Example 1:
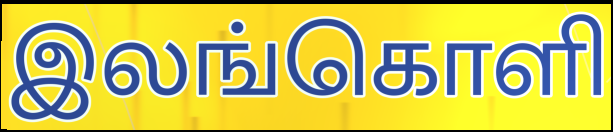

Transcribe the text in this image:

இலங்கொளி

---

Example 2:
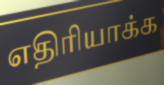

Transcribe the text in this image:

எதிரியாக்க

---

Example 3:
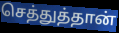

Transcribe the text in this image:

செத்துத்தான்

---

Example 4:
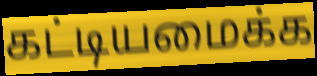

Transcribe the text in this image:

கட்டியமைக்க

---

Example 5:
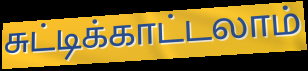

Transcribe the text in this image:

சுட்டிக்காட்டலாம்